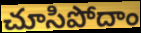
చూసిపోదాం